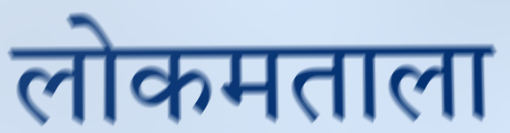
लोकमताला